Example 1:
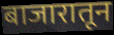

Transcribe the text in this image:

बाजारातून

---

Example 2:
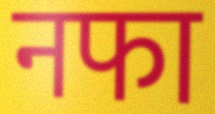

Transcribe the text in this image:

नफा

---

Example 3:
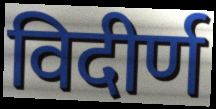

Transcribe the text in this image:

विदीर्ण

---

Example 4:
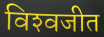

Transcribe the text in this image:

विश्वजीत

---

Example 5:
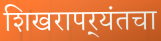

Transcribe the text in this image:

शिखरापर्यंतचा